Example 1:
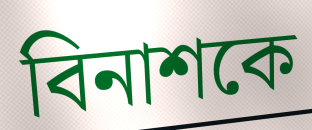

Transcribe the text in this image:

বিনাশকে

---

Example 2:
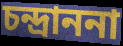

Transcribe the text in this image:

চন্দ্রাননা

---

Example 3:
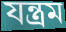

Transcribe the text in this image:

যন্ত্রম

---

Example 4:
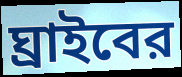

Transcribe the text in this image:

ঘ্রাইবের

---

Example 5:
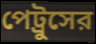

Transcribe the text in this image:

পেট্রুসের